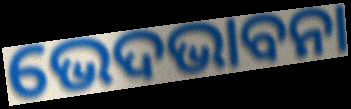
ଭେଦଭାବନା